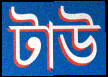
টাউ